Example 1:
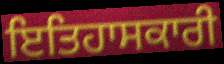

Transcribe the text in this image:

ਇਤਿਹਾਸਕਾਰੀ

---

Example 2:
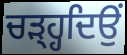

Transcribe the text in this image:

ਚੜ੍ਹ੍ਹਦਿਉਂ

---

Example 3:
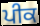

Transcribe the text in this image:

ਪੀਕ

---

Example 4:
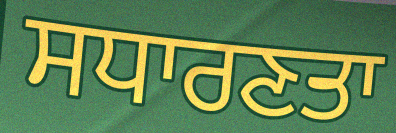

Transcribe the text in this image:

ਸਧਾਰਣਤਾ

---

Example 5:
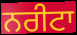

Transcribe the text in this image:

ਨਰੀਟਾ